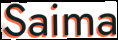
Saima